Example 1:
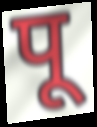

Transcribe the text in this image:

पू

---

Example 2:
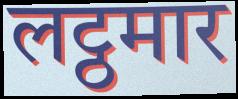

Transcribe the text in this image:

लट्ठमार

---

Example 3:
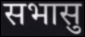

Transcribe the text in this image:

सभासु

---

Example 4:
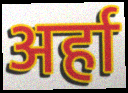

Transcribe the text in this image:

अर्हा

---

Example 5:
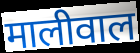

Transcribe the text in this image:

मालीवाल